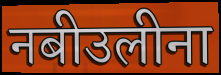
नबीउलीना